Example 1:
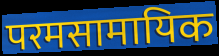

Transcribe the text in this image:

परमसामायिक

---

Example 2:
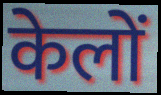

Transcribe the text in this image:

केलों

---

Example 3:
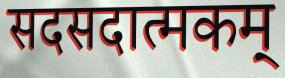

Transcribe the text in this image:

सदसदात्मकम्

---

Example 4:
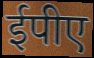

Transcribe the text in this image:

ईपीए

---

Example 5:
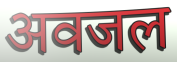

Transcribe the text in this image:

अवजल